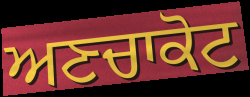
ਅਣਚਾਕੋਟ